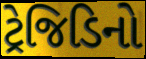
ટ્રેજિડિનો